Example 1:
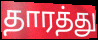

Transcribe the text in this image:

தாரத்து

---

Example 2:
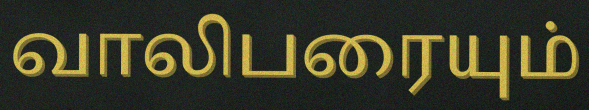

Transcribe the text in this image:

வாலிபரையும்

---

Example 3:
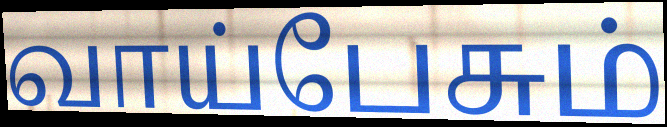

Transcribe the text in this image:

வாய்பேசும்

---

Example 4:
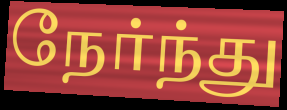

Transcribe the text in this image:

நேர்ந்து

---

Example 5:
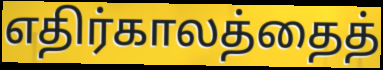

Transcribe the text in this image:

எதிர்காலத்தைத்